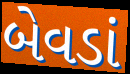
બેવડાં